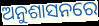
ଅନୁଶାସନରେ